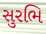
સુરભિ